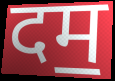
दम॒